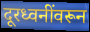
दूरध्वनींवरून